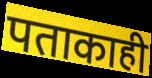
पताकाही